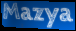
Mazya